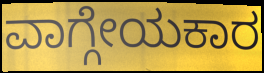
ವಾಗ್ಗೇಯಕಾರ